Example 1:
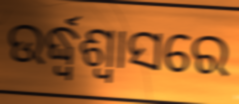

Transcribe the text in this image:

ଉର୍ଦ୍ଧ୍ଵଶ୍ୱାସରେ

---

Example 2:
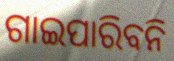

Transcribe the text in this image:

ଗାଇପାରିବନି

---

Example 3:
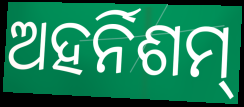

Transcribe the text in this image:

ଅହର୍ନିଶମ୍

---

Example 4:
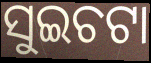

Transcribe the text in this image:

ସୁଇଚଟା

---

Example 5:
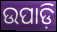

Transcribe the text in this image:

ଉପାଡ଼ି